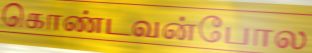
கொண்டவன்போல